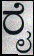
ರೈ